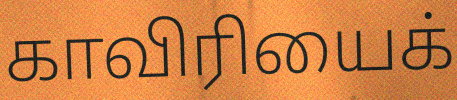
காவிரியைக்